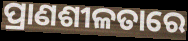
ପ୍ରାଣଶୀଳତାରେ